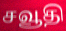
சவூதி